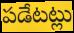
పడేటట్లు